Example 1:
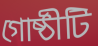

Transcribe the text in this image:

গোষ্ঠীটি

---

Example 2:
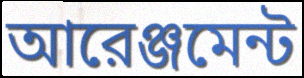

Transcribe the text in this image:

আরেঞ্জমেন্ট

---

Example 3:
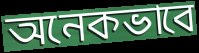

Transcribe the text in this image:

অনেকভাবে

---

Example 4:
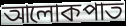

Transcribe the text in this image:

আলোকপাত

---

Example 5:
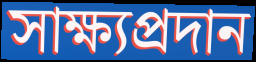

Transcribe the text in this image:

সাক্ষ্যপ্রদান